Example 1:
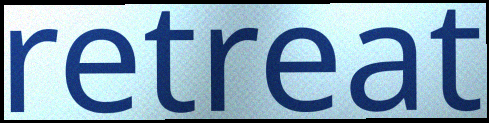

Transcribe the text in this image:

retreat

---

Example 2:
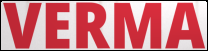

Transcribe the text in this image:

VERMA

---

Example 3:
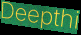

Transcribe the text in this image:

Deepthi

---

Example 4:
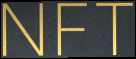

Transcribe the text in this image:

NFT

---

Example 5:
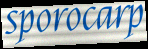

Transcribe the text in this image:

sporocarp